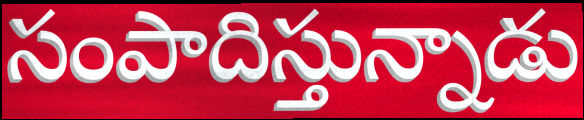
సంపాదిస్తున్నాడు